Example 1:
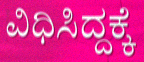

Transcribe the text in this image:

ವಿಧಿಸಿದ್ದಕ್ಕೆ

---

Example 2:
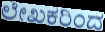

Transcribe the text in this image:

ಲೇಖಕರಿಂದ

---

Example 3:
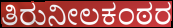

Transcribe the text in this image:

ತಿರುನೀಲಕಂಠರ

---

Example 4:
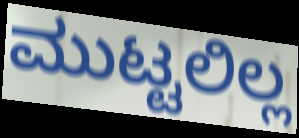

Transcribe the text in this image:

ಮುಟ್ಟಲಿಲ್ಲ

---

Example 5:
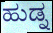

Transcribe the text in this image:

ಹುಡ್ನ